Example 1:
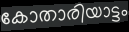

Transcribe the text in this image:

കോതാരിയാട്ടം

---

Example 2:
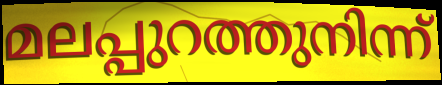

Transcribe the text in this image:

മലപ്പുറത്തുനിന്ന്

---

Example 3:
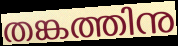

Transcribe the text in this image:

തങ്കത്തിനു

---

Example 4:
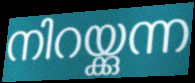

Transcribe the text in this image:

നിറയ്ക്കുന്ന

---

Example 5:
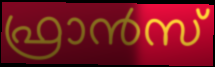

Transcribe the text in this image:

ഫ്രാൻസ്